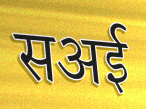
सअई